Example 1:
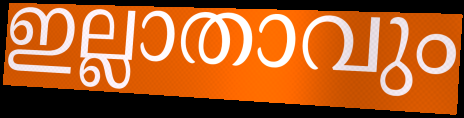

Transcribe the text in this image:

ഇല്ലാതാവും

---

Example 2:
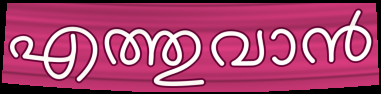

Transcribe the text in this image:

എത്തുവാൻ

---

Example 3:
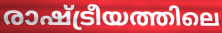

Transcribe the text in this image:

രാഷ്ട്രീയത്തിലെ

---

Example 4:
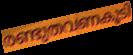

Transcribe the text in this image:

രണ്ടുതവണകൂടി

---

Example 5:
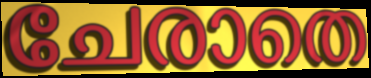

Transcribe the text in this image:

ചേരാതെ